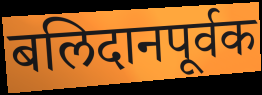
बलिदानपूर्वक